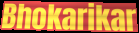
Bhokarikar